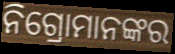
ନିଗ୍ରୋମାନଙ୍କର